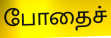
போதைச்